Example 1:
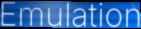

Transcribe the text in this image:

Emulation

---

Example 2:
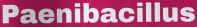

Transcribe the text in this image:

Paenibacillus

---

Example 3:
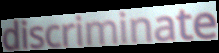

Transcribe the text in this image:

discriminate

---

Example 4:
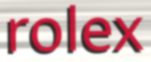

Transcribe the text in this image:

rolex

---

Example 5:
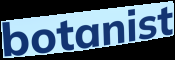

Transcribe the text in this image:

botanist